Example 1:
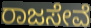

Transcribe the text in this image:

ರಾಜಸೇವೆ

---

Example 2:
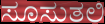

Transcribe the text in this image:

ಸೂಸುತಲಿ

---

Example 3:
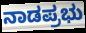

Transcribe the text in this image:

ನಾಡಪ್ರಭು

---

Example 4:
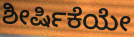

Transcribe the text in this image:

ಶೀರ್ಷಿಕೆಯೇ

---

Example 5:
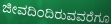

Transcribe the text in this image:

ಜೀವದಿಂದಿರುವವರೆಗೂ